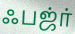
ஃபஜ்ர்